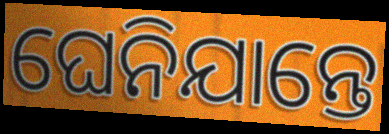
ଘେନିଯାନ୍ତେ